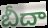
బీదా